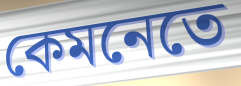
কেমনেতে